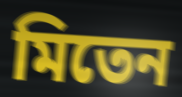
মিতেন